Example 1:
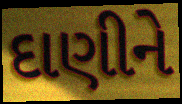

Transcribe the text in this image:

દાણીને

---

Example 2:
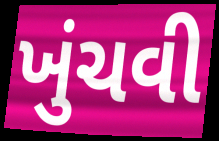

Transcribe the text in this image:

ખુંચવી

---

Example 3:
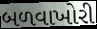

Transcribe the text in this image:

બળવાખોરી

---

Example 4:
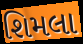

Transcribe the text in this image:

શિમલા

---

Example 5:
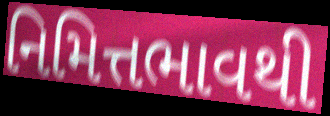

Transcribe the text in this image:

નિમિત્તભાવથી